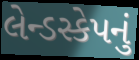
લેન્ડસ્કેપનું